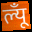
ल्यूँ